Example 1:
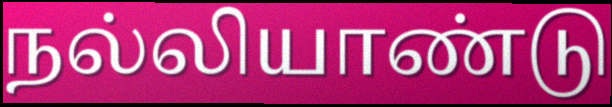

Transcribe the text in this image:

நல்லியாண்டு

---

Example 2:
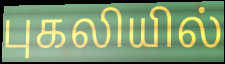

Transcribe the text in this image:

புகலியில்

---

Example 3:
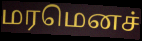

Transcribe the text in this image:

மரமெனச்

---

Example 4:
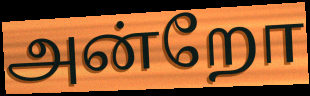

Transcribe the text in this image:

அன்றோ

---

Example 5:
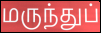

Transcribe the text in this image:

மருந்துப்